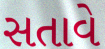
સતાવે